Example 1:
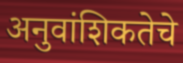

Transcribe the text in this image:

अनुवांशिकतेचे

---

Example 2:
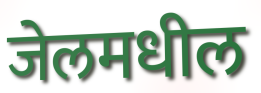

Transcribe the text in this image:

जेलमधील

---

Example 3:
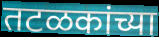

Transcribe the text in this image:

तटळकांच्या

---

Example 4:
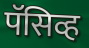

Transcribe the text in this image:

पॅसिव्ह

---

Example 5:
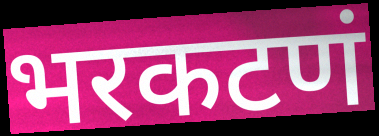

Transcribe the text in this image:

भरकटणं